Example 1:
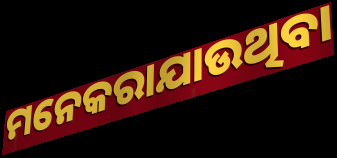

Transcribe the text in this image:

ମନେକରାଯାଉଥିବା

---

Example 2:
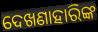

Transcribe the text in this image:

ଦେଖଣାହାରିଙ୍କ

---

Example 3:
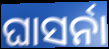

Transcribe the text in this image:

ଘାସର୍ନା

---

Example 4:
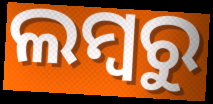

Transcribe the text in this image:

ଲମ୍ବରୁ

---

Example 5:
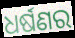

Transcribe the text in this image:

ଧର୍ଷଣର